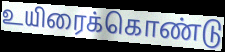
உயிரைக்கொண்டு